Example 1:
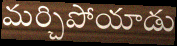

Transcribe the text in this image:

మర్చిపోయాడు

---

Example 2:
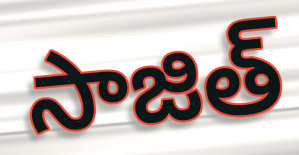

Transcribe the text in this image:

సాజిత్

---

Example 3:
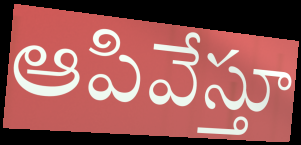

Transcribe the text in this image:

ఆపివేస్తూ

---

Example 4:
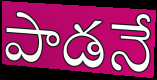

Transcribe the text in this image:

పాడనే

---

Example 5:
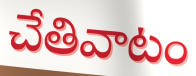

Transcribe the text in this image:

చేతివాటం